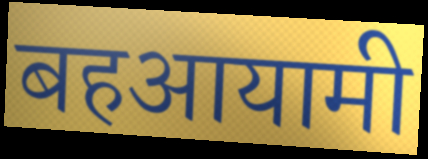
बहआयामी